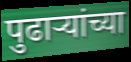
पुढार्‍यांच्या